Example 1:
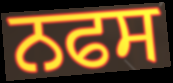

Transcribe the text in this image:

ਨਫਸ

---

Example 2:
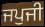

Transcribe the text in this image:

ਜਪੁਜੀ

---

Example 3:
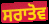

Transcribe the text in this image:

ਸਰਾਤੋਵ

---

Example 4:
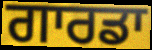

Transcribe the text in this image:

ਗਾਰਡਾ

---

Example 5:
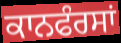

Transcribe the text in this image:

ਕਾਨਫੰਰਸਾਂ